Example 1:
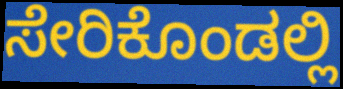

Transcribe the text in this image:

ಸೇರಿಕೊಂಡಲ್ಲಿ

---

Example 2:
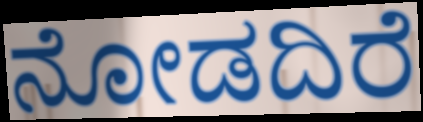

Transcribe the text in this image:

ನೋಡದಿರೆ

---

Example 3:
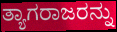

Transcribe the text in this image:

ತ್ಯಾಗರಾಜರನ್ನು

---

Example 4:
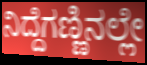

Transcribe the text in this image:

ನಿದ್ದೆಗಣ್ಣಿನಲ್ಲೇ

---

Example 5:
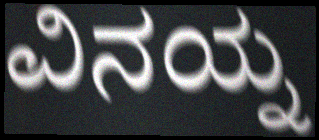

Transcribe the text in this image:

ವಿನಯ್ನ